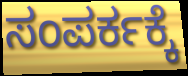
ಸಂಪರ್ಕಕ್ಕೆ